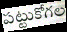
పట్టుకోగల